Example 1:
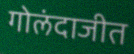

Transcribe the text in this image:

गोलंदाजीत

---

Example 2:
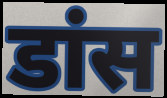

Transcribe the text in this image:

डांस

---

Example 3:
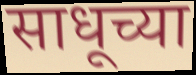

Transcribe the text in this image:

साधूच्या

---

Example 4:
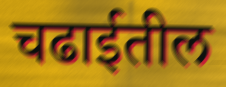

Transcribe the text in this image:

चढाईतील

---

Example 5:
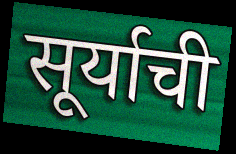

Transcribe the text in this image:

सूर्याची